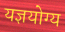
यज्ञयोग्य